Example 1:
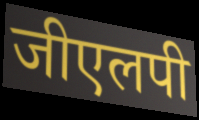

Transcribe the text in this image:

जीएलपी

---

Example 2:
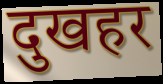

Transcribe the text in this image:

दुखहर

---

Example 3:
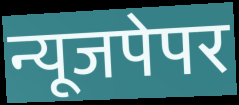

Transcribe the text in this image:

न्यूजपेपर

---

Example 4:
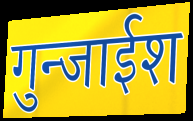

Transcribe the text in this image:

गुन्जाईश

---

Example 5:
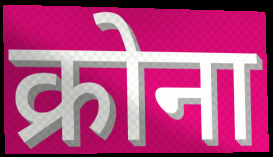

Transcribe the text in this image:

क्रोना